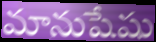
మానుషేషు